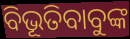
ବିଭୂତିବାବୁଙ୍କ